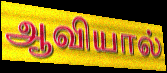
ஆவியால்